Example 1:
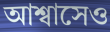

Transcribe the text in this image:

আশ্বাসেও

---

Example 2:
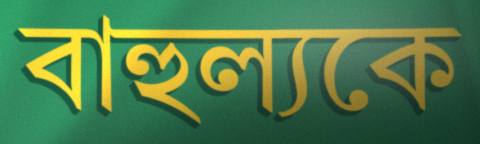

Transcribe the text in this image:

বাহুল্যকে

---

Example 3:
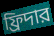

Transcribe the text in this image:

ফ্রিদার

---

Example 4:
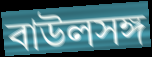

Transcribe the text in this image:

বাউলসঙ্গ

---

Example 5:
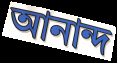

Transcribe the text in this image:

আনান্দ